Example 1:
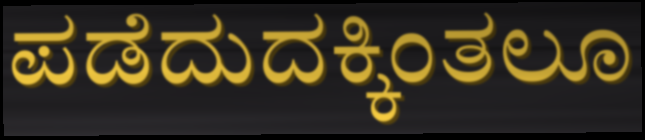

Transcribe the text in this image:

ಪಡೆದುದಕ್ಕಿಂತಲೂ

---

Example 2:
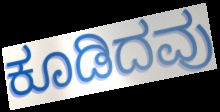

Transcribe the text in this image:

ಕೂಡಿದವು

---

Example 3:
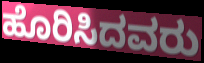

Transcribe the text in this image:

ಹೊರಿಸಿದವರು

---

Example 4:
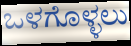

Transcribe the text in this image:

ಒಳಗೊಳ್ಳಲು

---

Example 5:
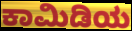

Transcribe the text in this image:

ಕಾಮಿಡಿಯ